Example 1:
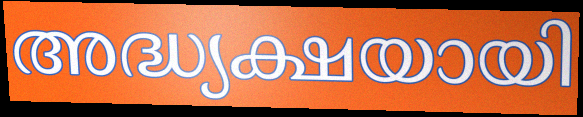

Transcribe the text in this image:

അദ്ധ്യക്ഷയായി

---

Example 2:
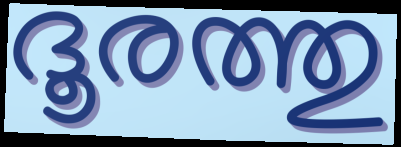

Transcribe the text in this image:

ദൂരത്തു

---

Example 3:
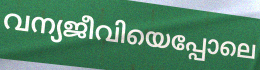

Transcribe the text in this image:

വന്യജീവിയെപ്പോലെ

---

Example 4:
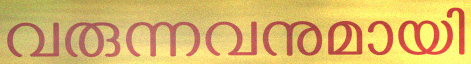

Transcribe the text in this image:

വരുന്നവനുമായി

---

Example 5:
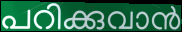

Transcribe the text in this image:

പറിക്കുവാൻ